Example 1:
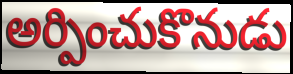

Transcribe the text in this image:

అర్పించుకొనుడు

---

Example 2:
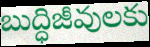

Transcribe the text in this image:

బుద్ధిజీవులకు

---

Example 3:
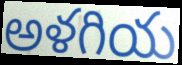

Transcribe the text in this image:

అళగియ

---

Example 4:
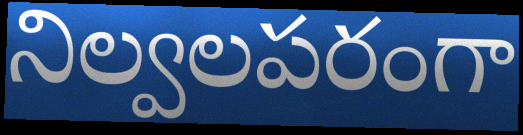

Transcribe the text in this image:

నిల్వలపరంగా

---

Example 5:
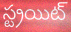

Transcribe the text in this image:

స్ట్రయిట్